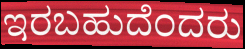
ಇರಬಹುದೆಂದರು